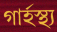
গার্হস্থ্য